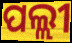
ପଲ୍ଲୀ